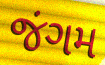
જંગમ